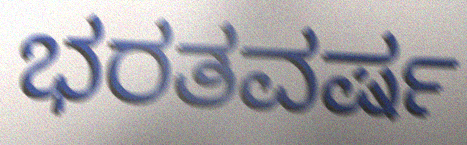
ಭರತವರ್ಷ